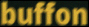
buffon